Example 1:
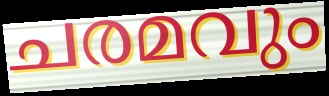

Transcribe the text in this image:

ചരമവും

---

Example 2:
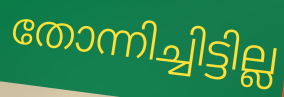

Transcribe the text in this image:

തോന്നിച്ചിട്ടില്ല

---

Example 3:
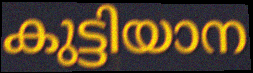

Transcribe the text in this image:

കുട്ടിയാന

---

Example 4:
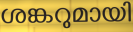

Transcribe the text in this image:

ശങ്കറുമായി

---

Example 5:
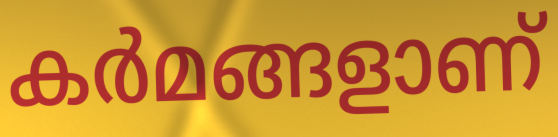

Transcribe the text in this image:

കർമങ്ങളാണ്